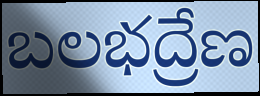
బలభద్రేణ